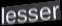
lesser